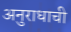
अनुराधाची